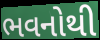
ભવનોથી